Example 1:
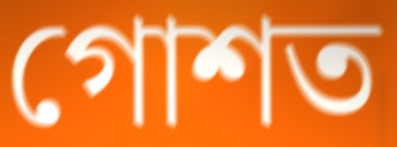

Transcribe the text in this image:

গোশত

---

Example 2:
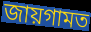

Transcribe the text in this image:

জায়গামত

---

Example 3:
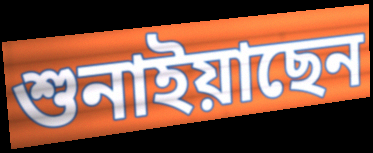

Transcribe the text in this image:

শুনাইয়াছেন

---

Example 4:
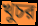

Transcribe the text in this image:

খুচর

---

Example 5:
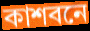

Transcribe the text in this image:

কাশবনে